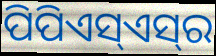
ପିପିଏସ୍ଏସ୍‌ର